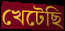
খেটেছি